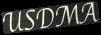
USDMA